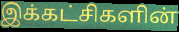
இக்கட்சிகளின்